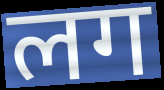
लग